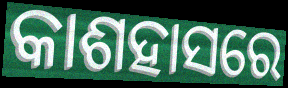
କାଶହାସରେ